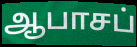
ஆபாசப்